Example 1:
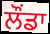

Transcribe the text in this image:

ਲੌਂਡਾ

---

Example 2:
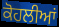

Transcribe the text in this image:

ਕੋਹਲੀਆਂ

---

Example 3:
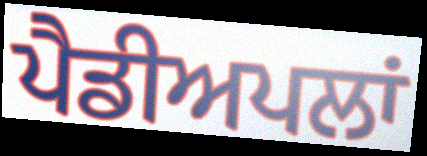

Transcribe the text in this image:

ਪੈਡੀਅਪਲਾਂ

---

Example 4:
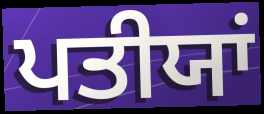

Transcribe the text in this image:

ਪਤੀਯਾਂ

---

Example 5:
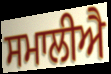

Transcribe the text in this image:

ਸਮਾਲੀਐ